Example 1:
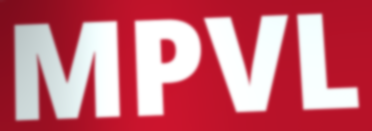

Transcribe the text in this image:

MPVL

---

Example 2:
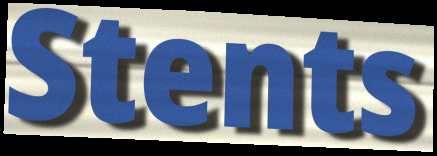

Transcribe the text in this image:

Stents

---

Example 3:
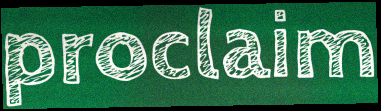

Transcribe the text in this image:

proclaim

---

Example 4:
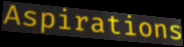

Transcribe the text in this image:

Aspirations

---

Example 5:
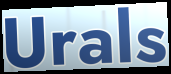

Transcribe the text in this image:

Urals